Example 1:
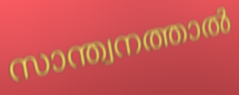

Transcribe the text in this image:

സാന്ത്വനത്താൽ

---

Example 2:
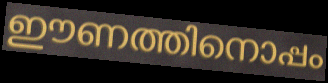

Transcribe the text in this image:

ഈണത്തിനൊപ്പം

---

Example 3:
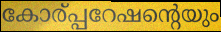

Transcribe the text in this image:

കോര്പ്പറേഷന്റെയും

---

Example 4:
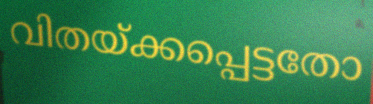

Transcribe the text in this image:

വിതയ്ക്കപ്പെട്ടതോ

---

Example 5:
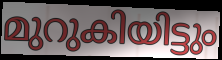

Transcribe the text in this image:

മുറുകിയിട്ടും